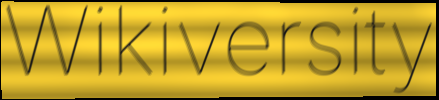
Wikiversity